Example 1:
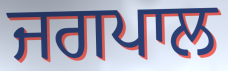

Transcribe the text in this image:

ਜਗਪਾਲ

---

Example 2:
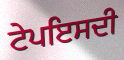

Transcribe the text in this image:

ਟੇਪਇਸਦੀ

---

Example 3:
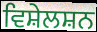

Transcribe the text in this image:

ਵਿਸ਼ੇਲਸ਼ਨ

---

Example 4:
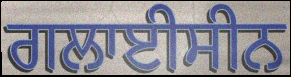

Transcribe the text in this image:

ਗਲਾਈਸੀਨ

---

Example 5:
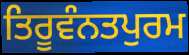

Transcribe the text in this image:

ਤਿਰੂਵੰਨਤਪੁਰਮ